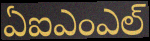
ఏఐఎంఎల్